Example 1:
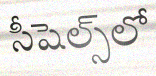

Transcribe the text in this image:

సీషెల్స్‌లో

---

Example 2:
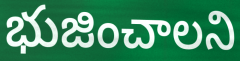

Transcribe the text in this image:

భుజించాలని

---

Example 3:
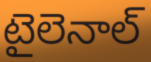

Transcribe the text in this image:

టైలెనాల్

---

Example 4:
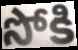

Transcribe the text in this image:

సోకి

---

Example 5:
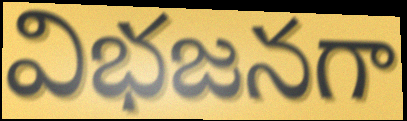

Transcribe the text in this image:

విభజనగా